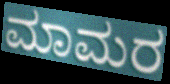
ಮಾಮರ